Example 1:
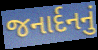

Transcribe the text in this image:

જનાર્દનનું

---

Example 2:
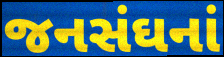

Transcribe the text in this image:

જનસંઘનાં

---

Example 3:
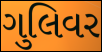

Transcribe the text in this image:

ગુલિવર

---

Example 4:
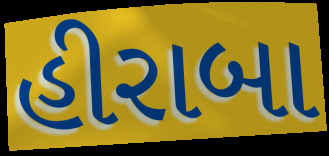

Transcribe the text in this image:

હીરાબા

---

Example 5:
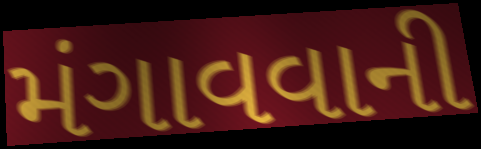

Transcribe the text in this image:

મંગાવવાની